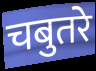
चबुतरे